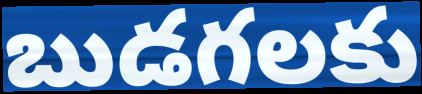
బుడగలకు